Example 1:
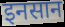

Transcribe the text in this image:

इनसान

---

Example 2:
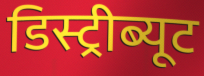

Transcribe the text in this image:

डिस्ट्रीब्यूट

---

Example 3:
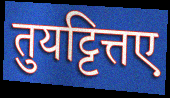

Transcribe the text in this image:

तुयट्टित्तए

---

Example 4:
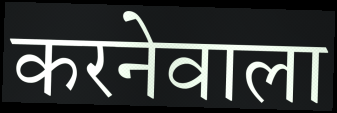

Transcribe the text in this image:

करनेवाला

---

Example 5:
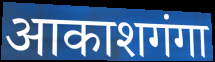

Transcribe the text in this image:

आकाशगंगा